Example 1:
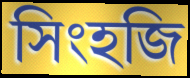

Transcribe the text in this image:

সিংহজি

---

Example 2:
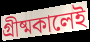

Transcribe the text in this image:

গ্রীষ্মকালেই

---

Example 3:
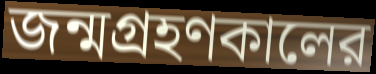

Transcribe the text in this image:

জন্মগ্রহণকালের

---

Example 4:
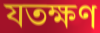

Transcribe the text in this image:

যতক্ষণ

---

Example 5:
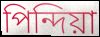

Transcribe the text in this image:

পিন্দিয়া